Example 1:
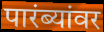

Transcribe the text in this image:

पारंब्यांवर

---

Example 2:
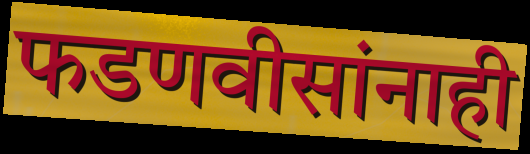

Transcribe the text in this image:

फडणवीसांनाही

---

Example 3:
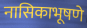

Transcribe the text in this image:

नासिकाभूषणे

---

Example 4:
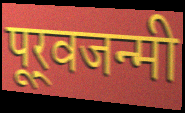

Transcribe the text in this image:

पूर्वजन्मी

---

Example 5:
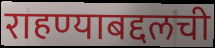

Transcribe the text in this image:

राहण्याबद्दलची